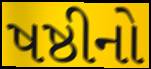
ષષ્ઠીનો